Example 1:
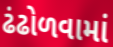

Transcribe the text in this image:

ઢંઢોળવામાં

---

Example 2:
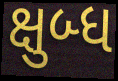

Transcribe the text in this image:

ક્ષુબ્ધ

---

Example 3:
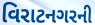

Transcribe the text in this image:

વિરાટનગરની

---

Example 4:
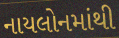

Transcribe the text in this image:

નાયલોનમાંથી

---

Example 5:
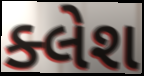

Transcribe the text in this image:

ક્લેશ